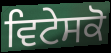
ਵਿਟੇਸਕੋ